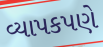
વ્યાપકપણે